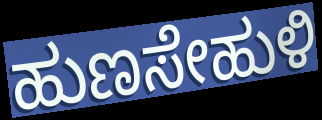
ಹುಣಸೇಹುಳಿ